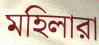
মহিলারা